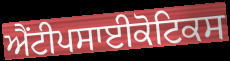
ਐਂਟੀਪਸਾਈਕੋਟਿਕਸ